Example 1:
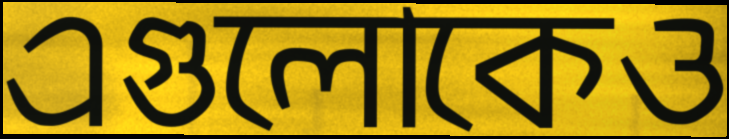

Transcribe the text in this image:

এগুলোকেও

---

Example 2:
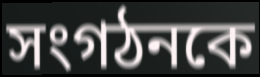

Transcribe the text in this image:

সংগঠনকে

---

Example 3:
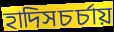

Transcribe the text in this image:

হাদিসচর্চায়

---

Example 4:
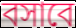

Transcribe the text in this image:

বসাবে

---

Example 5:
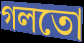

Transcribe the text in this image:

গলতো